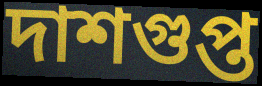
দাশগুপ্ত